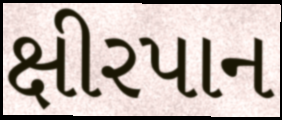
ક્ષીરપાન